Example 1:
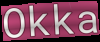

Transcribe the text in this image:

Okka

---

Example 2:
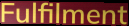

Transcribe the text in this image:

Fulfilment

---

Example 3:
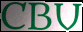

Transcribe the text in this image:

CBU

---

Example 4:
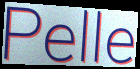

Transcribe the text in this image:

Pelle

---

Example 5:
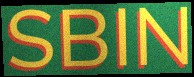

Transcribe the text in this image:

SBIN